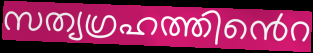
സത്യഗ്രഹത്തിൻെറ